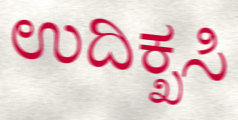
ಉದಿಕ್ಖಸಿ